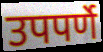
उपपर्णे